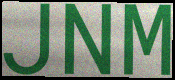
JNM